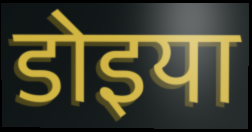
डोइया